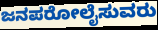
ಜನಪರೋಲೈಸುವರು